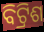
ବିଟ୍ରିଶ